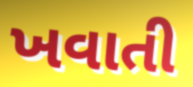
ખવાતી